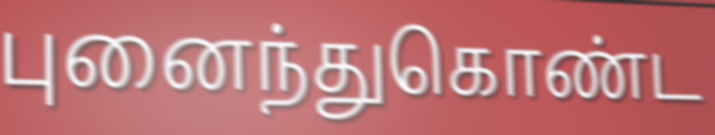
புனைந்துகொண்ட